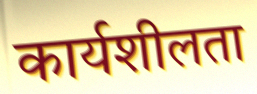
कार्यशीलता